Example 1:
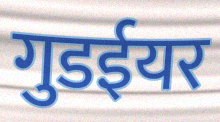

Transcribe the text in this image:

गुडईयर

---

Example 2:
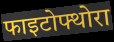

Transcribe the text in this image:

फाइटोफ्थोरा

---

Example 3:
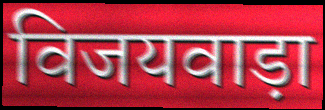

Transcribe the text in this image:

विजयवाड़ा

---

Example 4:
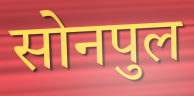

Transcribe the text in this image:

सोनपुल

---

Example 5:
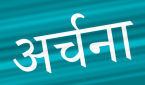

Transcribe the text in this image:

अर्चना